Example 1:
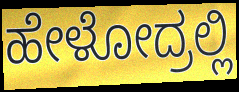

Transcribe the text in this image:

ಹೇಳೋದ್ರಲ್ಲಿ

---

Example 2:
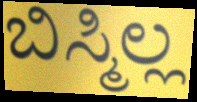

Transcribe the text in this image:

ಬಿಸ್ಮಿಲ್ಲ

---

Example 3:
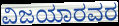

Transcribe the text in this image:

ವಿಜಯಾರವರ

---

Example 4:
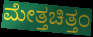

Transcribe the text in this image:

ಮೇತ್ತಚಿತ್ತಂ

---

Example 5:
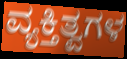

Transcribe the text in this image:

ವ್ಯಕ್ತಿತ್ವಗಳ